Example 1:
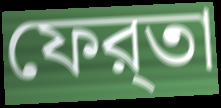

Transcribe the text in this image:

ফের্‌তা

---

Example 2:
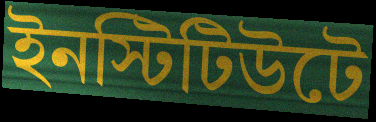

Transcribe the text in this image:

ইনস্টিটিউটে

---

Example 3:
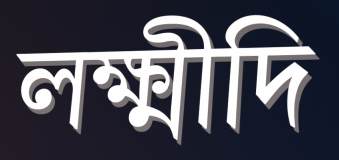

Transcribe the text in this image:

লক্ষ্মীদি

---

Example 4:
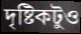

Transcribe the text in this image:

দৃষ্টিকটুও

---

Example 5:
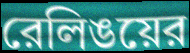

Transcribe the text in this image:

রেলিঙয়ের